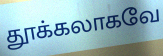
தூக்கலாகவே